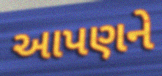
આપણને